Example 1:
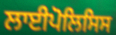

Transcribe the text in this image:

ਲਾਈਪੋਲਿਸਿਸ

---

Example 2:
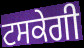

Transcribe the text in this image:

ਟਸਕੇਗੀ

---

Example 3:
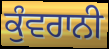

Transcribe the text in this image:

ਕੁੰਵਰਾਨੀ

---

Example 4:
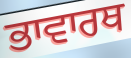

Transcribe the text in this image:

ਭਾਵਾਰਥ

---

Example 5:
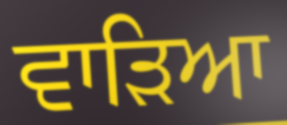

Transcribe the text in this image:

ਵਾੜਿਆ